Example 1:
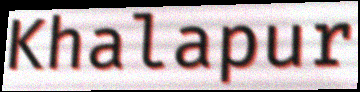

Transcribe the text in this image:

Khalapur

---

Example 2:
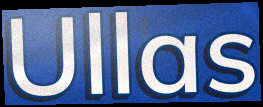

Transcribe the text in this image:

Ullas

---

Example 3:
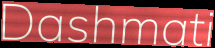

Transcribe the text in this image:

Dashmati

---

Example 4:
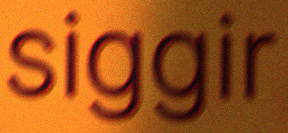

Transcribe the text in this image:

siggir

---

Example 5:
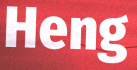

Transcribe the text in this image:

Heng